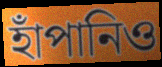
হাঁপানিও